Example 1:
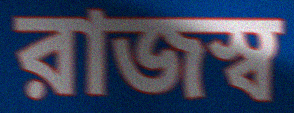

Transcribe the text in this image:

রাজস্ব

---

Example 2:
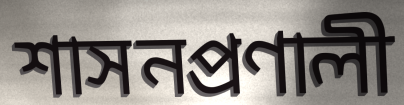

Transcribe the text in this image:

শাসনপ্রণালী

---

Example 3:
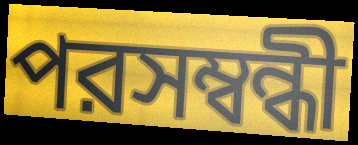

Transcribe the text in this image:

পরসম্বন্ধী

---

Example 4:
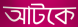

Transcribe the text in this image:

আটকে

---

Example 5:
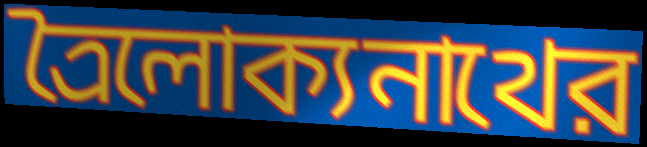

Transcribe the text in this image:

ত্রৈলোক্যনাথের